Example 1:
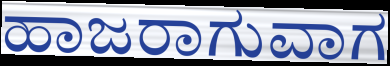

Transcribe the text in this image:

ಹಾಜರಾಗುವಾಗ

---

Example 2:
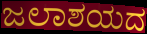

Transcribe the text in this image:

ಜಲಾಶಯದ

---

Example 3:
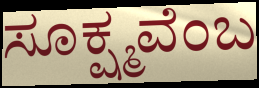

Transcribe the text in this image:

ಸೂಕ್ಷ್ಮವೆಂಬ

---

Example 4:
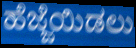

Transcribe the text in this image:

ಹೆಜ್ಜೆಯಿಡಲು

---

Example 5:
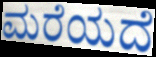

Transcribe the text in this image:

ಮರೆಯದೆ